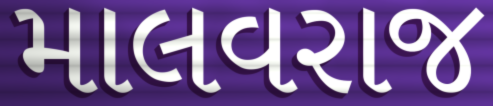
માલવરાજ